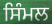
ਸਿੰਮਲ